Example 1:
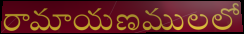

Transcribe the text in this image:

రామాయణములలో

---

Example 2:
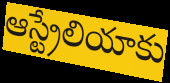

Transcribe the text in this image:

ఆస్ట్రేలియాకు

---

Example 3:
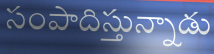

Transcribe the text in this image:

సంపాదిస్తున్నాడు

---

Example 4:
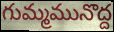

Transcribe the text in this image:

గుమ్మమునొద్ద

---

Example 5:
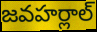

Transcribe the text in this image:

జవహర్లాల్